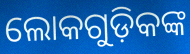
ଲୋକଗୁଡ଼ିକଙ୍କ